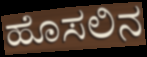
ಹೊಸಲಿನ